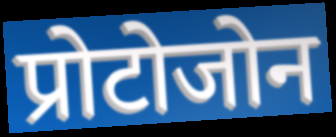
प्रोटोजोन